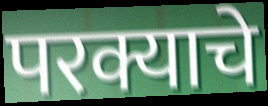
परक्याचे